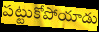
పట్టుకోపోయాడు